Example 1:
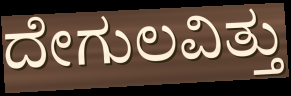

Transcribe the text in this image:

ದೇಗುಲವಿತ್ತು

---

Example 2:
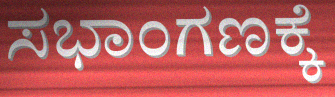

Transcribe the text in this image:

ಸಭಾಂಗಣಕ್ಕೆ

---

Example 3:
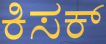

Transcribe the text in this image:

ಕಿಸಕ್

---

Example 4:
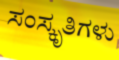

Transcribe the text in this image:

ಸಂಸ್ಕೃತಿಗಳು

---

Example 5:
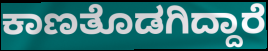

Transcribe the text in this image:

ಕಾಣತೊಡಗಿದ್ದಾರೆ